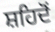
ਸ਼ਹਿਦੋਂ